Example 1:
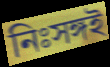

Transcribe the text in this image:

নিঃসঙ্গই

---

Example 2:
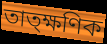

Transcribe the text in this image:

তাত্ক্ষণিক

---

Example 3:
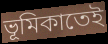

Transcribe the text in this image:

ভূমিকাতেই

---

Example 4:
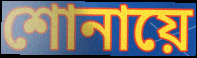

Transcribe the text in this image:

শোনায়ে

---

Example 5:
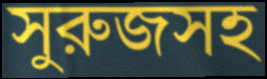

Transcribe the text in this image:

সুরুজসহ